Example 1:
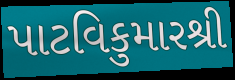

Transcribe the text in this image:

પાટવિકુમારશ્રી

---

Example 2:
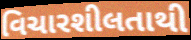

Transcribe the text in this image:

વિચારશીલતાથી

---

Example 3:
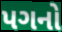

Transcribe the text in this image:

પગનો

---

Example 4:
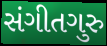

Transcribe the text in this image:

સંગીતગુરુ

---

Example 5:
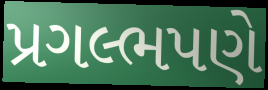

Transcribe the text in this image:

પ્રગલ્ભપણે